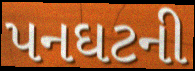
પનઘટની